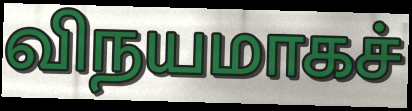
விநயமாகச்